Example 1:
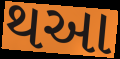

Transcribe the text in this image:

થઆ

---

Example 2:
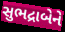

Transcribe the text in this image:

સુભદ્રાબેને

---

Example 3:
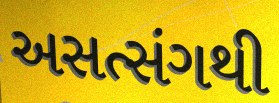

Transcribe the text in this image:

અસત્સંગથી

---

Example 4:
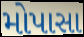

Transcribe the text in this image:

મોપાસા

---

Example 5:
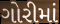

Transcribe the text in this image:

ગોરીમાં